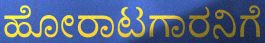
ಹೋರಾಟಗಾರನಿಗೆ